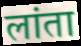
लांता